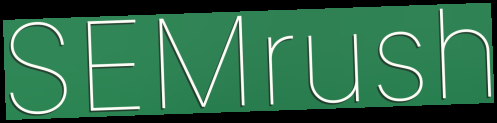
SEMrush